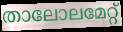
താലോലമേറ്റ്